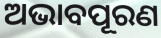
ଅଭାବପୂରଣ